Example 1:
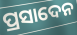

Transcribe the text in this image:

ପ୍ରସାଦେନ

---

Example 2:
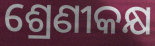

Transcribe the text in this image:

ଶ୍ରେଣୀକକ୍ଷ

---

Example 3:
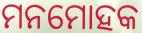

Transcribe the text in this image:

ମନମୋହକ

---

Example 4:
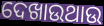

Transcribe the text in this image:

ଦେଖାଉଥାଉ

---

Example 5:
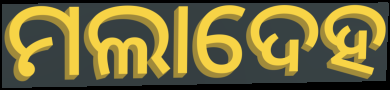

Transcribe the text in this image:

ମଲାଦେହ